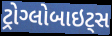
ટ્રોગ્લોબાઇટ્સ